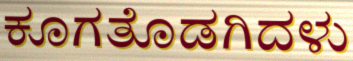
ಕೂಗತೊಡಗಿದಳು